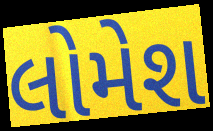
લોમેશ